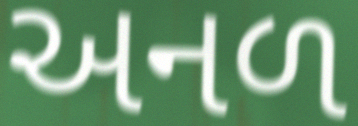
અનળ